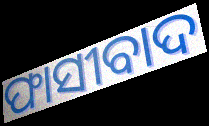
ଫାସୀବାଦ